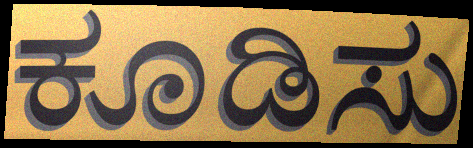
ಕೂಡಿಸು